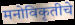
मनोविकृतीचे